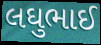
લઘુભાઈ